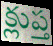
క్లుప్త